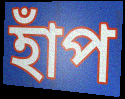
হাঁপ